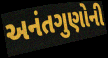
અનંતગુણોની